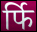
र्फि